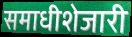
समाधीशेजारी